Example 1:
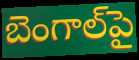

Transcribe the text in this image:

బెంగాల్‌పై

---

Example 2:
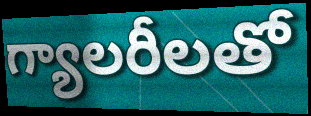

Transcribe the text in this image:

గ్యాలరీలతో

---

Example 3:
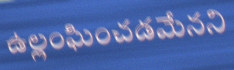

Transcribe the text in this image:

ఉల్లంఘించడమేనని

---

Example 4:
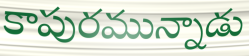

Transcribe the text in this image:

కాపురమున్నాడు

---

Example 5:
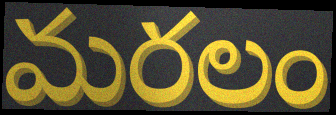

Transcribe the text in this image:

మరలం